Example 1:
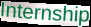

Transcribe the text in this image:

Internship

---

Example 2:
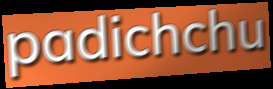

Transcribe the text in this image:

padichchu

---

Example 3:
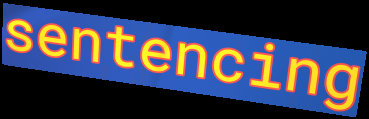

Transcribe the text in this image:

sentencing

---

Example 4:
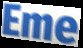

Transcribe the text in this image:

Eme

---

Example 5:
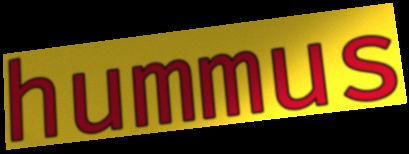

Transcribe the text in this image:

hummus